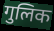
गुलिक